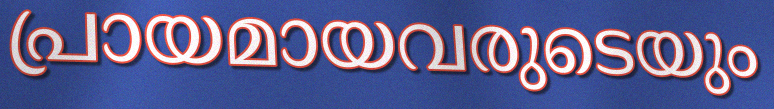
പ്രായമായവരുടെയും